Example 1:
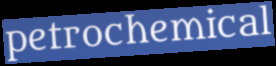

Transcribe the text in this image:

petrochemical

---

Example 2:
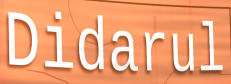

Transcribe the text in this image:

Didarul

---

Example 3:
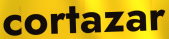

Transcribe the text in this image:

cortazar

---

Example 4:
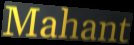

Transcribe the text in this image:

Mahant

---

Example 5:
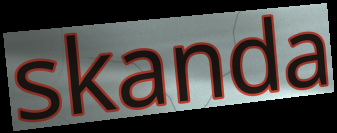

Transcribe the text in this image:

skanda